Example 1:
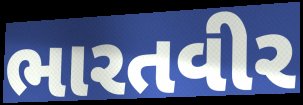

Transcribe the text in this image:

ભારતવીર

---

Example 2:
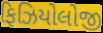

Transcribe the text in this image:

ફિઝિયોલોજી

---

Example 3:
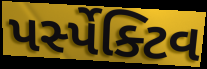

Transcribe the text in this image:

પર્સ્પેક્ટિવ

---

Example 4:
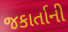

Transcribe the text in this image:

જકાર્તાની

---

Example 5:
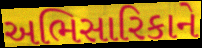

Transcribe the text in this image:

અભિસારિકાને